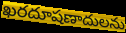
ఖరదూషణాదులను